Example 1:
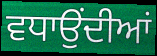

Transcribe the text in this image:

ਵਧਾਉਂਦੀਆਂ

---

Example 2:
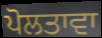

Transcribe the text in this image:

ਪੋਲਤਾਵਾ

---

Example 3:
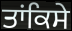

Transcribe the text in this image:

ਤਾਂਕਿਸੇ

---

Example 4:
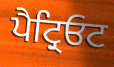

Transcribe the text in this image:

ਪੈਟ੍ਰਿਓਟ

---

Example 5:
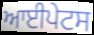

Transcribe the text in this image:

ਆਈਪੇਟਸ